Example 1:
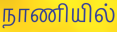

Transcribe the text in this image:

நாணியில்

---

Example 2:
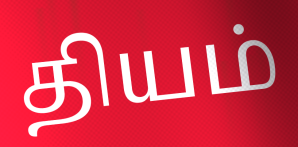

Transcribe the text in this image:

தியம்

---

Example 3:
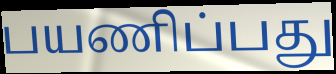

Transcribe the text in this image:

பயணிப்பது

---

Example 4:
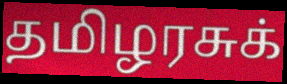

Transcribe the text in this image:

தமிழரசுக்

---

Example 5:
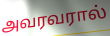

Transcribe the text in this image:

அவரவரால்